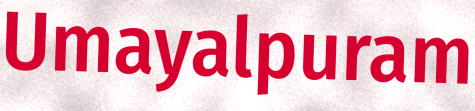
Umayalpuram